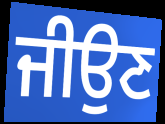
ਜੀਉਣ